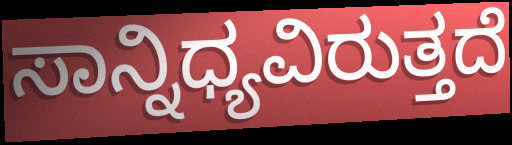
ಸಾನ್ನಿಧ್ಯವಿರುತ್ತದೆ